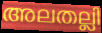
അലതല്ലി